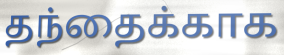
தந்தைக்காக